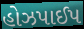
હોઝપાઈપ